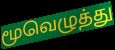
மூவெழுத்து